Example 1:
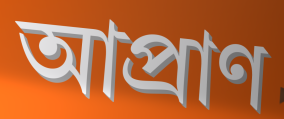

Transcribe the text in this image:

আপ্রাণ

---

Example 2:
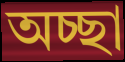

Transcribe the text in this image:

অচ্ছা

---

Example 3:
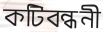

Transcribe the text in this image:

কটিবন্ধনী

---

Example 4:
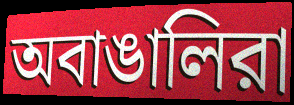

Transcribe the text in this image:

অবাঙালিরা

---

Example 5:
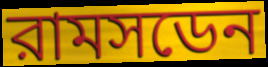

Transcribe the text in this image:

রামসডেন